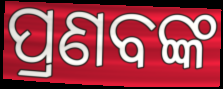
ପ୍ରଣବଙ୍କ